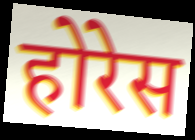
होरेस